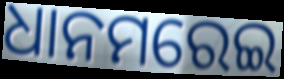
ଧାନମରେଇ